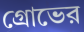
গ্রোভের